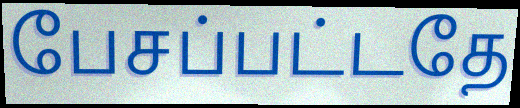
பேசப்பட்டதே